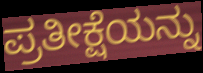
ಪ್ರತೀಕ್ಷೆಯನ್ನು